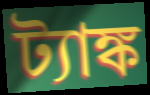
ট্যাঙ্ক